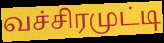
வச்சிரமுட்டி